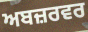
ਅਬਜ਼ਰਵਰ